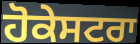
ਹੋਕੇਸਟਰਾ